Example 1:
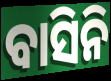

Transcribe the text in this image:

ବାସିନି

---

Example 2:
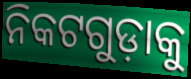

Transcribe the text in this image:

ନିକଟଗୁଡ଼ାକୁ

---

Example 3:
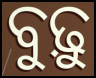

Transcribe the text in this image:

ବୁଢ଼ୁ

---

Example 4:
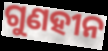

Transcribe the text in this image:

ଗୁଣହୀନ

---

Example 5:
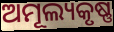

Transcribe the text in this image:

ଅମୂଲ୍ୟକୃଷ୍ଣ